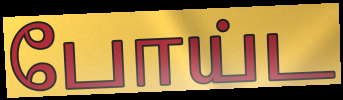
போய்ட